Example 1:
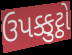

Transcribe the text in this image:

ઉપક્કુટ્ઠો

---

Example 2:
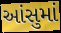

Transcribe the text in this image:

આંસુમાં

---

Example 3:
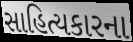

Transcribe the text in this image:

સાહિત્યકારના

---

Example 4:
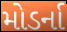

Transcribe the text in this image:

મોડર્ના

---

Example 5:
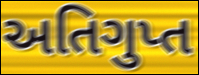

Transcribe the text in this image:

અતિગુપ્ત